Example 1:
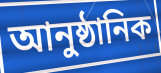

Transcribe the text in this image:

আনুষ্ঠানিক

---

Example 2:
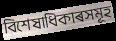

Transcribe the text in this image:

বিশেষাধিকাৰসমূহ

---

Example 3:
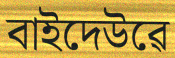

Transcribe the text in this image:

বাইদেউৱে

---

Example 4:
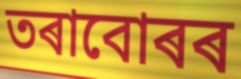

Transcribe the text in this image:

তৰাবোৰৰ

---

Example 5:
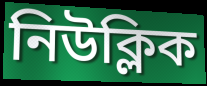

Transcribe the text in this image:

নিউক্লিক